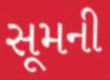
સૂમની